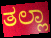
ತಲ್ಲಾ